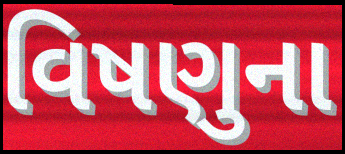
વિષણુના